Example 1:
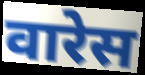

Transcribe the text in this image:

वारेस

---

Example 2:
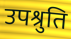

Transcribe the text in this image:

उपश्रुति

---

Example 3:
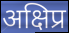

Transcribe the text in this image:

अक्षिप्र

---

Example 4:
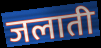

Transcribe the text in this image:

जलाती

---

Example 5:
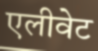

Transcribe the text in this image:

एलीवेट